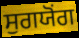
ਸੁਗਯੋਂਗ